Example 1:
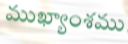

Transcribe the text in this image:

ముఖ్యాంశము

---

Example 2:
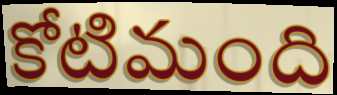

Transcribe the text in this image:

కోటిమంది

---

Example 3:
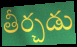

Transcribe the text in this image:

తీర్చడు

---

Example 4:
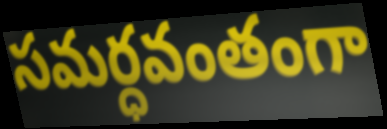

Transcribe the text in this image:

సమర్ధవంతంగా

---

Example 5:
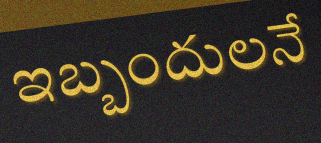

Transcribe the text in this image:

ఇబ్బందులనే